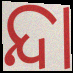
ନ୍ଦା